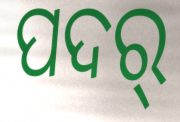
ପଦର୍